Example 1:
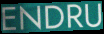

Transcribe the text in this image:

ENDRU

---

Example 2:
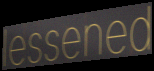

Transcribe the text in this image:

lessened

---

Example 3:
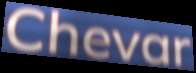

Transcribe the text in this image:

Chevar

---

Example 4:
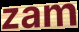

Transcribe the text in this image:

zam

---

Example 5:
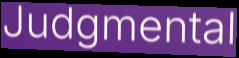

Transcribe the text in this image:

Judgmental